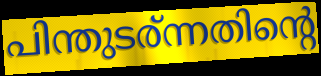
പിന്തുടര്ന്നതിന്റെ